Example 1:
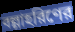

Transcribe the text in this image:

বল্গাহরিণের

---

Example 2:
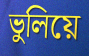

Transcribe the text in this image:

ভুলিয়ে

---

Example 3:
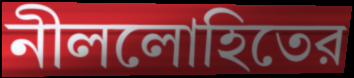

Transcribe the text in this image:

নীললোহিতের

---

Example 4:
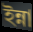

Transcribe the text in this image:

ইন্না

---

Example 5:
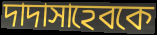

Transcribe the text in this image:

দাদাসাহেবকে